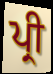
ਪ੍ਰੀ